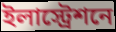
ইলাস্ট্রেশনে